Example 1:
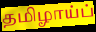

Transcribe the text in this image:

தமிழாய்ப்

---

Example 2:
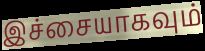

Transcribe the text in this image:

இச்சையாகவும்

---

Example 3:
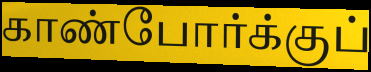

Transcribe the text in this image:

காண்போர்க்குப்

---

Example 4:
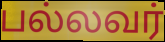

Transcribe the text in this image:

பல்லவர்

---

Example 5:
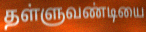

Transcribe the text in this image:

தள்ளுவண்டியை